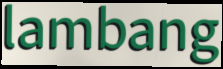
lambang